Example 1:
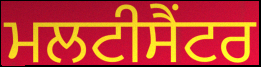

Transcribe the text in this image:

ਮਲਟੀਸੈਂਟਰ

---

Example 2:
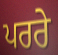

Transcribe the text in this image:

ਪਰਰੇ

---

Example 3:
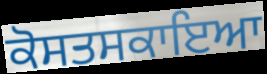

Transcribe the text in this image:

ਕੋਸਤਸਕਾਇਆ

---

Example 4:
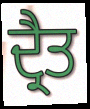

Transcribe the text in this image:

ਦ੍ਰੈਤ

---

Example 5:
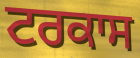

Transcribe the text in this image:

ਟਰਕਾਸ